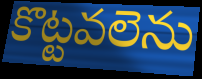
కొట్టవలెను